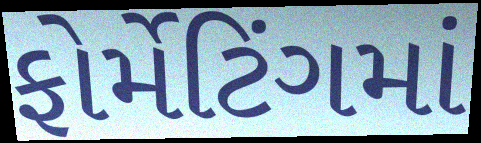
ફોર્મેટિંગમાં